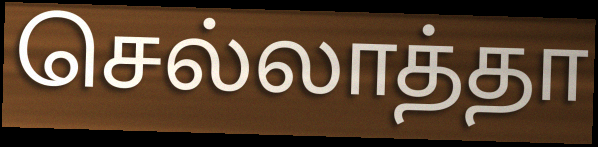
செல்லாத்தா